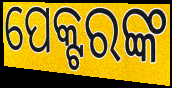
ପେକ୍ଟରଙ୍କ